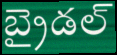
బ్రైడల్